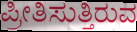
ಪ್ರೀತಿಸುತ್ತಿರುವ